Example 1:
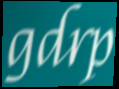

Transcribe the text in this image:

gdrp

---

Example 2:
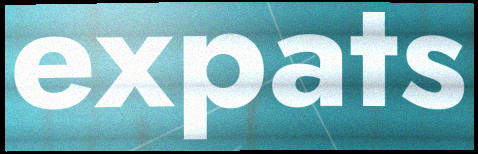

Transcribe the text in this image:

expats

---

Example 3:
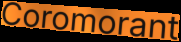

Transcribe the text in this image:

Coromorant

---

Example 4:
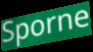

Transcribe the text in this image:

Sporne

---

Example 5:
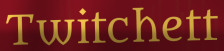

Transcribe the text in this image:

Twitchett